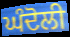
ਘੰਦੋਲੀ